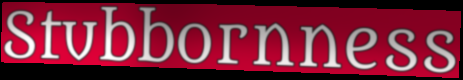
Stubbornness